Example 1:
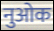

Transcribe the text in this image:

नुओक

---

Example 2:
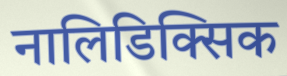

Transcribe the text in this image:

नालिडिक्सिक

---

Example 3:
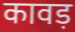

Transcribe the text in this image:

कावड़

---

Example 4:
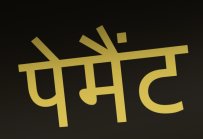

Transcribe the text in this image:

पेमैंट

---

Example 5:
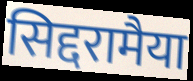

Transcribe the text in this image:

सिद्दरामैया